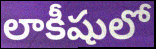
లాకీషులో